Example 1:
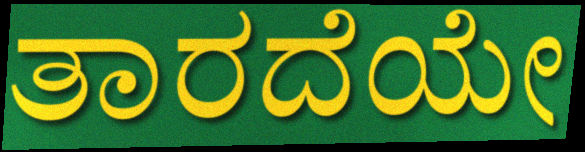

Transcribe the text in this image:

ತಾರದೆಯೇ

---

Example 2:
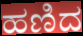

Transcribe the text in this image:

ಹಣಿದ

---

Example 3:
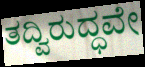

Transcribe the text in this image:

ತದ್ವಿರುದ್ಧವೇ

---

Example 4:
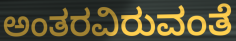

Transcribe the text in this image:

ಅಂತರವಿರುವಂತೆ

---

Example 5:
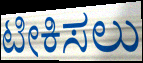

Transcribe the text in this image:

ಟೀಕಿಸಲು